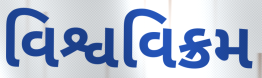
વિશ્વવિક્રમ